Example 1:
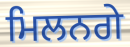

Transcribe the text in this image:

ਮਿਲਨਗੇ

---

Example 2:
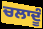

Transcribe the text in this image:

ਚਲਾਦੂੰ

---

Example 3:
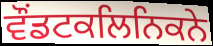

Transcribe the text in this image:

ਵੌਂਡਟਕਲਿਨਿਕਨੇ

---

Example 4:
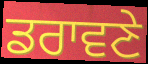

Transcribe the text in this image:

ਡਰਾਵਣੇ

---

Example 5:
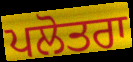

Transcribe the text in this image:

ਪਲੋਤਰਾ